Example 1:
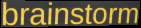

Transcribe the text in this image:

brainstorm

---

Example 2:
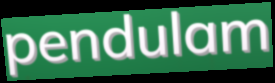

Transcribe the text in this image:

pendulam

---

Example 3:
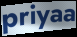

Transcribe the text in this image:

priyaa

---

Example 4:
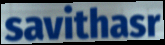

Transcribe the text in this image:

savithasr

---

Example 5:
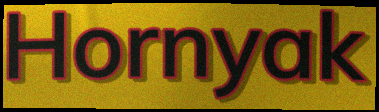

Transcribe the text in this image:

Hornyak